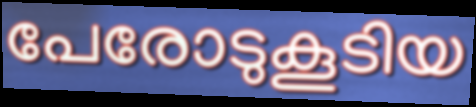
പേരോടുകൂടിയ